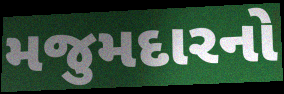
મજુમદારનો